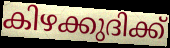
കിഴക്കുദിക്ക്